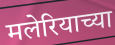
मलेरियाच्या